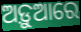
ଅଡ଼ୁଆରେ